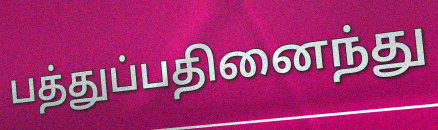
பத்துப்பதினைந்து